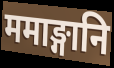
ममाङ्गानि